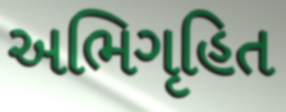
અભિગૃહિત